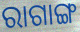
ରାଗାଙ୍ଗ